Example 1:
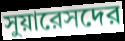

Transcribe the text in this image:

সুয়ারেসদের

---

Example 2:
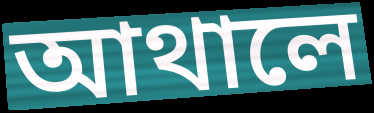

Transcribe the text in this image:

আথালে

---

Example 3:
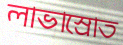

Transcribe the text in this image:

লাভাস্রোত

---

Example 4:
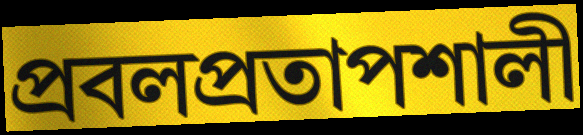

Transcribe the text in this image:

প্রবলপ্রতাপশালী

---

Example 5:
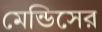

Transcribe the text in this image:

মেন্ডিসের